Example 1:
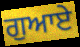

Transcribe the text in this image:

ਗੁਆਏ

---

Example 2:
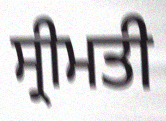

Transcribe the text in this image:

ਸ੍ਰੀਮਤੀ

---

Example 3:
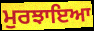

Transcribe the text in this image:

ਮੁਰਝਾਇਆ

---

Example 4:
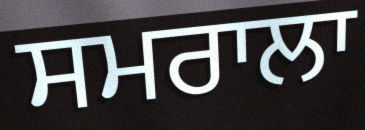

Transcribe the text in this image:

ਸਮਰਾਲਾ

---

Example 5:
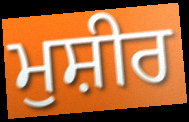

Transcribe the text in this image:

ਮੁਸ਼ੀਰ